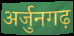
अर्जुनगढ़